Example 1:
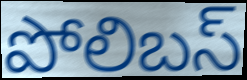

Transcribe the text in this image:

పోలిబస్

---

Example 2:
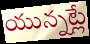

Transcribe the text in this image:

యున్నట్లే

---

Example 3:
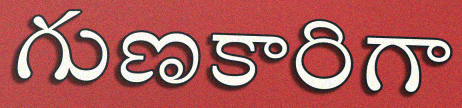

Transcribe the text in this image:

గుణకారిగా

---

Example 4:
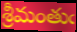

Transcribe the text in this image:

శ్రీమంతుఁ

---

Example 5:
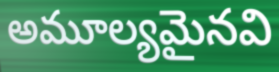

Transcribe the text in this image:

అమూల్యమైనవి